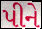
પીને